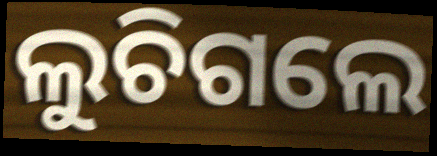
ଲୁଚିଗଲେ